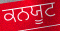
ਕਨਯੂਟ